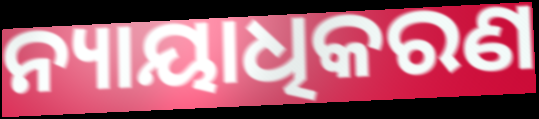
ନ୍ୟାୟାଧିକରଣ